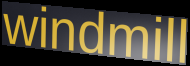
windmill